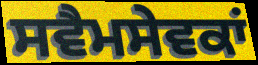
ਸਵੈਮਸੇਵਕਾਂ